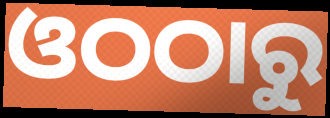
ଓଠଠାରୁ